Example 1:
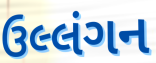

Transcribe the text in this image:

ઉલ્લંગન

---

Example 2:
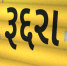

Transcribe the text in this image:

રૂદ્દરા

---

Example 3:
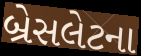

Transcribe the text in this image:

બ્રેસલેટના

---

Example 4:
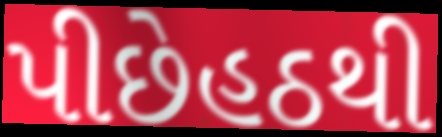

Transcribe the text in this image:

પીછેહઠથી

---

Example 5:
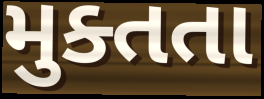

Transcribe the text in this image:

મુક્તતા